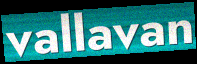
vallavan